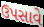
ઉપસાવે